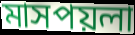
মাসপয়লা